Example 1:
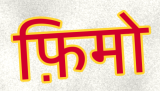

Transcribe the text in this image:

फ़िमो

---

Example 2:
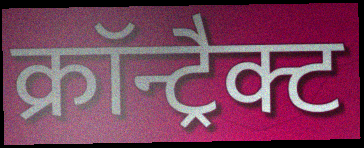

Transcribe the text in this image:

क्रॉन्ट्रैक्ट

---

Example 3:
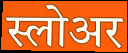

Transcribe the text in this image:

स्लोअर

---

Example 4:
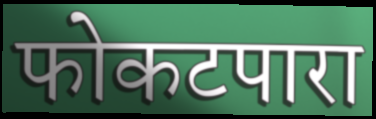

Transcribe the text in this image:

फोकटपारा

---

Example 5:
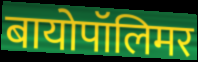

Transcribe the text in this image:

बायोपॉलिमर